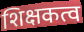
शिक्षकत्व